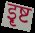
इृष्ट